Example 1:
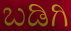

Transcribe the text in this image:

ಬಡಿಗಿ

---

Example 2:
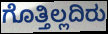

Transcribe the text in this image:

ಗೊತ್ತಿಲ್ಲದಿರು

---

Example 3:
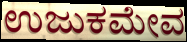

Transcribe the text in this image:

ಉಜುಕಮೇವ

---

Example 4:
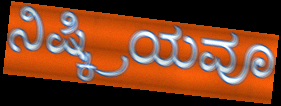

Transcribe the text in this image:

ನಿಷ್ಕ್ರಿಯವೂ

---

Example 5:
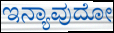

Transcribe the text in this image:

ಇನ್ಯಾವುದೋ